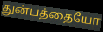
துன்பத்தையோ